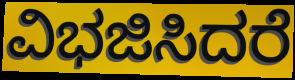
ವಿಭಜಿಸಿದರೆ